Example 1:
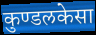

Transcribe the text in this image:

कुण्डलकेसा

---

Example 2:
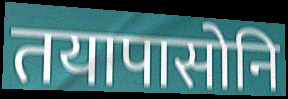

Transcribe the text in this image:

तयापासोनि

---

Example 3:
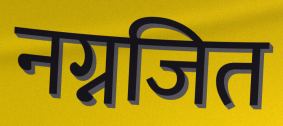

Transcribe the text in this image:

नग्नजित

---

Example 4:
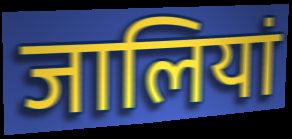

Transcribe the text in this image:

जालियां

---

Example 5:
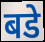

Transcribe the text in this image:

बडे